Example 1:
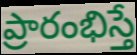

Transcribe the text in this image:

ప్రారంభిస్తే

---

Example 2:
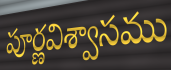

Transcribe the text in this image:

పూర్ణవిశ్వాసము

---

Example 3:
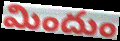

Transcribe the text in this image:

మిందుం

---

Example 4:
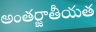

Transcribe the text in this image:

అంతర్జాతీయత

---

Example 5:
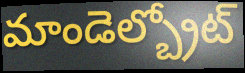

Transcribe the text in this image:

మాండెల్బ్రోట్